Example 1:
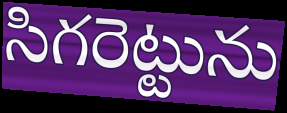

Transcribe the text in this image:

సిగరెట్టును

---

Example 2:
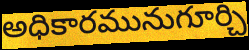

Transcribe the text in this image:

అధికారమునుగూర్చి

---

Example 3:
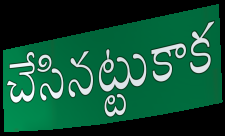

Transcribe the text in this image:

చేసినట్టుకాక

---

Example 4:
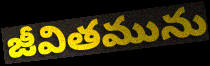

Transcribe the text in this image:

జీవితమును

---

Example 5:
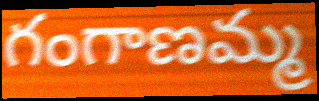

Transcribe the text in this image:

గంగాణమ్మ